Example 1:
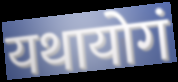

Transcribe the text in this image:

यथायोगं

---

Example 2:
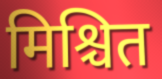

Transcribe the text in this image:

मिश्चित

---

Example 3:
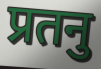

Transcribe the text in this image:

प्रतनु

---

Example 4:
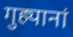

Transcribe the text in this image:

गुह्यानां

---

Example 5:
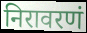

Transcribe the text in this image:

निरावरणं